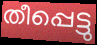
തീപ്പെട്ടു